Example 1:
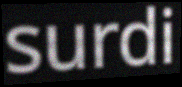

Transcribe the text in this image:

surdi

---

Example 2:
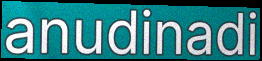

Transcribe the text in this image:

anudinadi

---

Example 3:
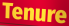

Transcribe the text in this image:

Tenure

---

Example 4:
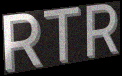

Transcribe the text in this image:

RTR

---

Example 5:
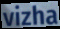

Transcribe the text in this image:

vizha